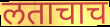
लताचाच